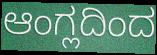
ಆಂಗ್ಲದಿಂದ